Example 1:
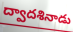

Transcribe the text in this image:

ద్వాదశినాడు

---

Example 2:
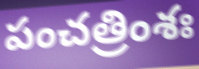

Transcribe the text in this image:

పంచత్రింశః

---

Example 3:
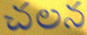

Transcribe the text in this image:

చలన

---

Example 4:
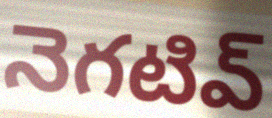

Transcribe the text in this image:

నెగటివ్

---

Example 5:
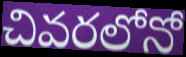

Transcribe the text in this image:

చివరలోనో